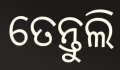
ତେନ୍ତୁଲି